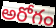
అరోగం